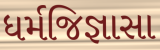
ધર્મજિજ્ઞાસા